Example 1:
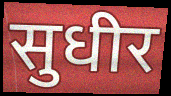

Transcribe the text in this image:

सुधीर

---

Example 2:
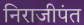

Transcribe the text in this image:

निराजीपंत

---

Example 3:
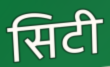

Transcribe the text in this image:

सिटी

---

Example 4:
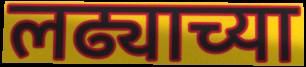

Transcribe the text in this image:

लढ्याच्या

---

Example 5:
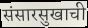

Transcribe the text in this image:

संसारसुखाची